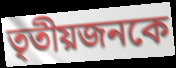
তৃতীয়জনকে